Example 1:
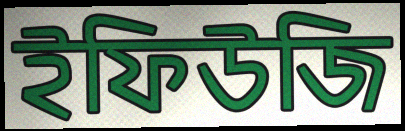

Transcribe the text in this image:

ইফিউজি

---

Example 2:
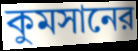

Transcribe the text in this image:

কুমসানের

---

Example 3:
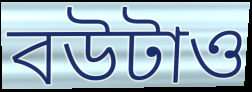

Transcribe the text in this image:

বউটাও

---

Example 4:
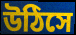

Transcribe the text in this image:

উঠিসে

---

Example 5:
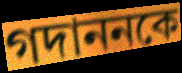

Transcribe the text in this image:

গদাননকে